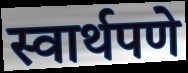
स्वार्थपणे